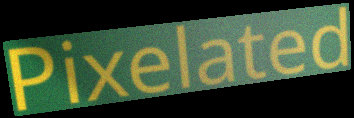
Pixelated